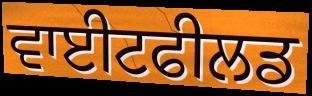
ਵਾਈਟਫੀਲਡ